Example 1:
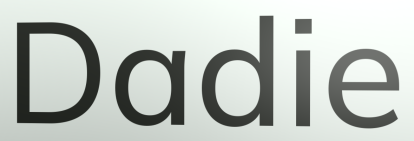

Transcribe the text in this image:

Dadie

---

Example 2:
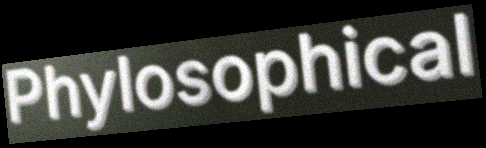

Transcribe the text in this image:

Phylosophical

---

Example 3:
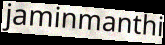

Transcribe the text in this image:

jaminmanthi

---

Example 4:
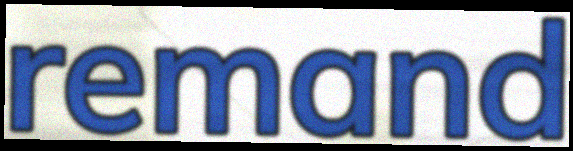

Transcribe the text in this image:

remand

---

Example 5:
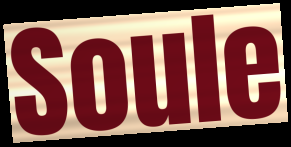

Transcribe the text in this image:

Soule